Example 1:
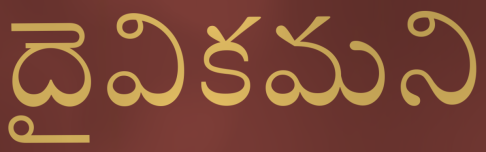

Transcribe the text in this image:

దైవికమని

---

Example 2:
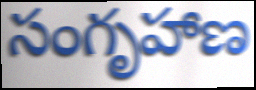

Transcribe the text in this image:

సంగృహాణ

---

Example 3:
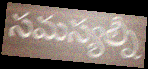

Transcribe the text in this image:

సమస్యల్నీ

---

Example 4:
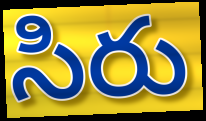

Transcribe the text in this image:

సిరు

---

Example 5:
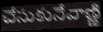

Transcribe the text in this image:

చేసుకునేవాణ్ణి